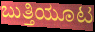
ಬುತ್ತಿಯೂಟ